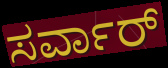
ಸರ್ವಾರ್